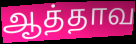
ஆத்தாவ